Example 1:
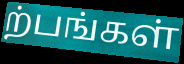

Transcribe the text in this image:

ற்பங்கள்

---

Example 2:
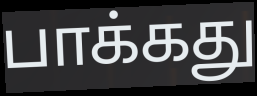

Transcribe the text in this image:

பாக்கது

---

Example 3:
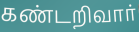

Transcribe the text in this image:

கண்டறிவார்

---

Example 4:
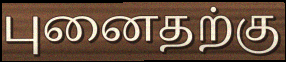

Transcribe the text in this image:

புனைதற்கு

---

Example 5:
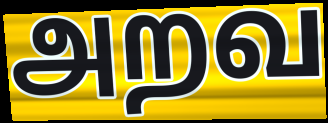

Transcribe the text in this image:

அறவ